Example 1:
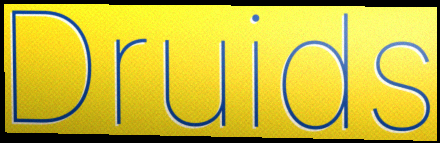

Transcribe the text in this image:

Druids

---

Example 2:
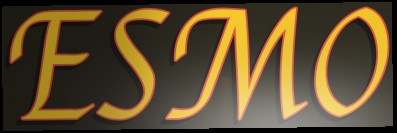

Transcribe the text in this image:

ESMO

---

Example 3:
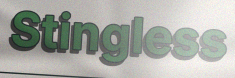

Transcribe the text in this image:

Stingless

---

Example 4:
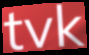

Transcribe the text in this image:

tvk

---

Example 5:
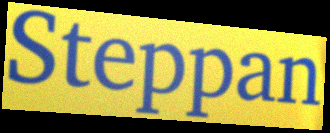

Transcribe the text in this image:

Steppan